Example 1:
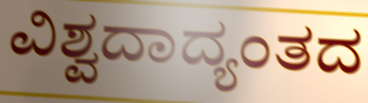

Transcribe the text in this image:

ವಿಶ್ವದಾದ್ಯಂತದ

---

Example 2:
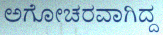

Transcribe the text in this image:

ಅಗೋಚರವಾಗಿದ್ದ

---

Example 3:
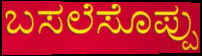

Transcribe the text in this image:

ಬಸಲೆಸೊಪ್ಪು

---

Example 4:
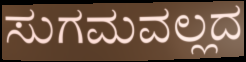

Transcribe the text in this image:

ಸುಗಮವಲ್ಲದ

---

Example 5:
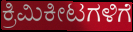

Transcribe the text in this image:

ಕ್ರಿಮಿಕೀಟಗಳಿಗೆ